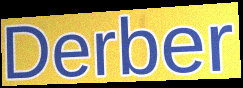
Derber